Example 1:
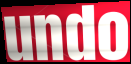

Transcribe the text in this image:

undo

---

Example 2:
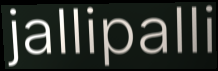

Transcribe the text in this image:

jallipalli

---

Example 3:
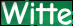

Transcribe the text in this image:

Witte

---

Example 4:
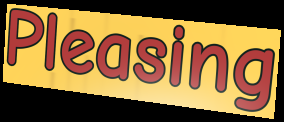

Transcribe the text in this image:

Pleasing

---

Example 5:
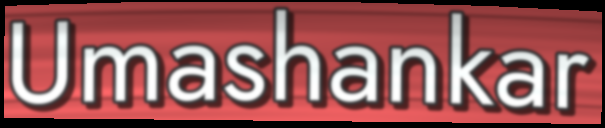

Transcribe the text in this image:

Umashankar